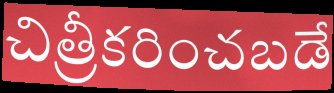
చిత్రీకరించబడే